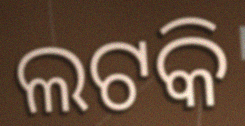
ଲଟକି